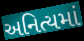
અનિત્યમાં